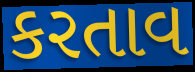
કરતાવ